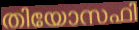
തിയോസഫി